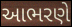
આભરણે